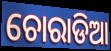
ଚୋରାଡିଆ